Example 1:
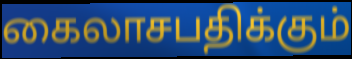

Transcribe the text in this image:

கைலாசபதிக்கும்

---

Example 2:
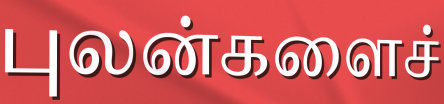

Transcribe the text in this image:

புலன்களைச்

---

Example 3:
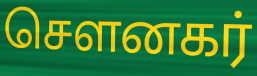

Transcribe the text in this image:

சௌனகர்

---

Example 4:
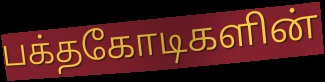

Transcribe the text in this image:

பக்தகோடிகளின்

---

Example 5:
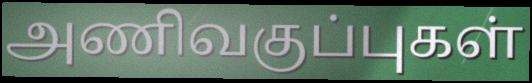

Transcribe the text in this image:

அணிவகுப்புகள்